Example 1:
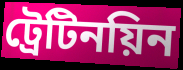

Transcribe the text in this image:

ট্রেটিনয়িন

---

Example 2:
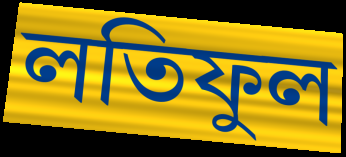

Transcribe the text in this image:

লতিফুল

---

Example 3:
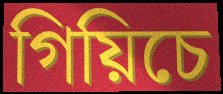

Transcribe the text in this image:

গিয়িচে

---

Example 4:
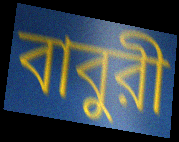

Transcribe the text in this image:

বাবুরী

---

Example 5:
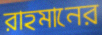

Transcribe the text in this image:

রাহমানের